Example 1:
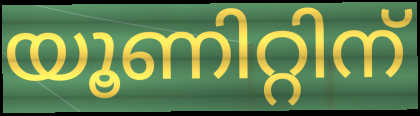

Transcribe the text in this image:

യൂണിറ്റിന്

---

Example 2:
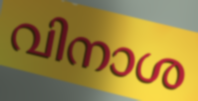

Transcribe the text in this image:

വിനാശ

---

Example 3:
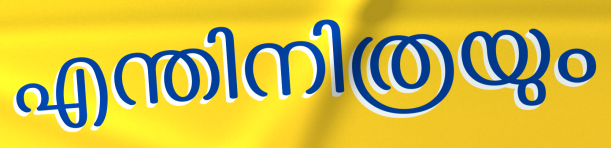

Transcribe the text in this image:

എന്തിനിത്രയും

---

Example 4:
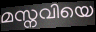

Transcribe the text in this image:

മസ്നവിയെ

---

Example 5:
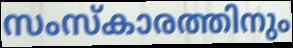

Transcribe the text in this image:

സംസ്കാരത്തിനും